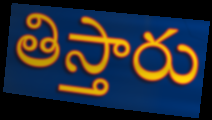
తిస్తారు